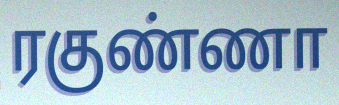
ரகுண்ணா